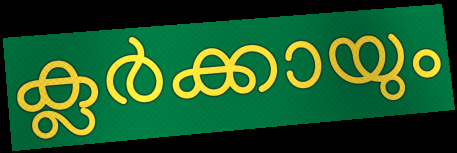
ക്ലർക്കായും